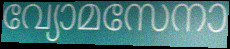
വ്യോമസേനാ